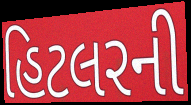
હિટલરની